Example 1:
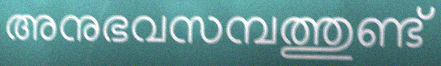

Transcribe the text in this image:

അനുഭവസമ്പത്തുണ്ട്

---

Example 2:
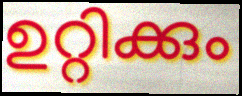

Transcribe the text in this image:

ഉറ്റിക്കും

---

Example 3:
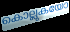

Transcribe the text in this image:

കൊല്ലുകയോ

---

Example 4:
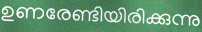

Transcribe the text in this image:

ഉണരേണ്ടിയിരിക്കുന്നു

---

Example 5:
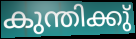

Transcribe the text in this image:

കുന്തിക്കു്